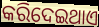
କରିଦେଇଥାଏ